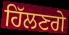
ਹਿੱਲਣਗੇ